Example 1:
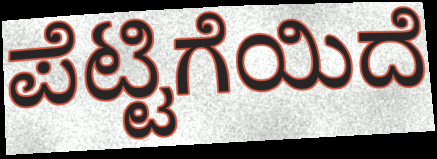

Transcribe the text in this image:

ಪೆಟ್ಟಿಗೆಯಿದೆ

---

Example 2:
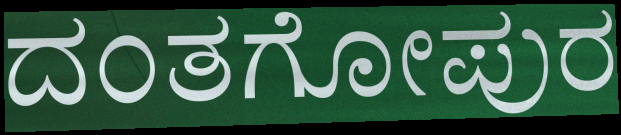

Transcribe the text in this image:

ದಂತಗೋಪುರ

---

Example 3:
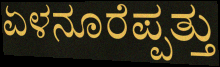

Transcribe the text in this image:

ಏಳನೂರೆಪ್ಪತ್ತು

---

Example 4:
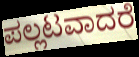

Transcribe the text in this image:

ಪಲ್ಲಟವಾದರೆ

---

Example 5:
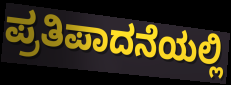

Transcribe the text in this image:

ಪ್ರತಿಪಾದನೆಯಲ್ಲಿ